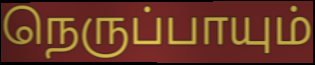
நெருப்பாயும்